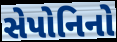
સેપોનિનો